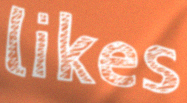
likes